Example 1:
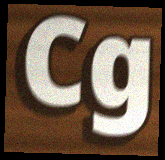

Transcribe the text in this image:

Cg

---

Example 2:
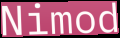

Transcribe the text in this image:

Nimod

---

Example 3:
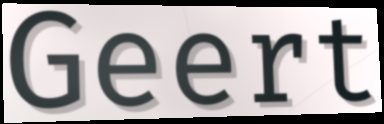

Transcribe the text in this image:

Geert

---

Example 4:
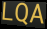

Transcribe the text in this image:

LQA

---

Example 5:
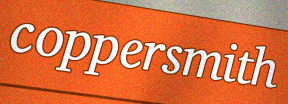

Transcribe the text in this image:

coppersmith